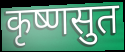
कृष्णसुत